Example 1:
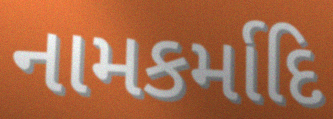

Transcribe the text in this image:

નામકર્માદિ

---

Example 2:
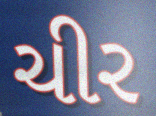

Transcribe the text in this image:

ચીર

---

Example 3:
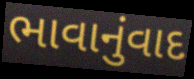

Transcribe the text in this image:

ભાવાનુંવાદ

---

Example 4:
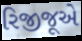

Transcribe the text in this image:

રિજીજૂએ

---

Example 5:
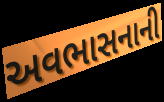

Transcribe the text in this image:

અવભાસનાની